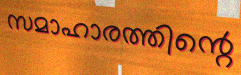
സമാഹാരത്തിന്റെ